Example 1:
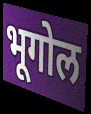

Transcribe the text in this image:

भूगोल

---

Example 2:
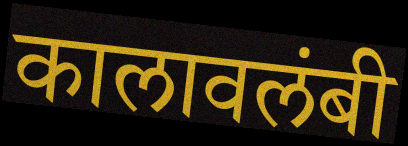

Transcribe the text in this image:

कालावलंबी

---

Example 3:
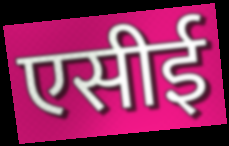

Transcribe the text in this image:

एसीई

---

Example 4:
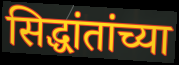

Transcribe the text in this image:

सिद्धांतांच्या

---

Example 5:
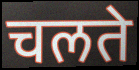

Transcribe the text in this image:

चलते